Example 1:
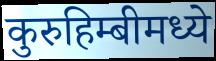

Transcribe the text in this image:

कुरुहिम्बीमध्ये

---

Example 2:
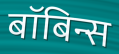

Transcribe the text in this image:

बॉबिन्स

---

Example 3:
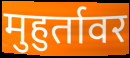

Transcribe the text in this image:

मुहुर्तावर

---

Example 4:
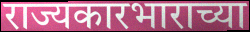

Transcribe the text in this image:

राज्यकारभाराच्या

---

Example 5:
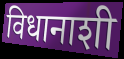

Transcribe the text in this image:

विधानाशी